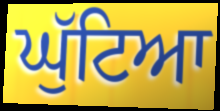
ਘੁੱਟਿਆ